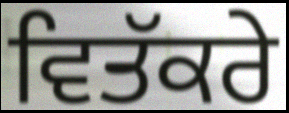
ਵਿਤੱਕਰੇ